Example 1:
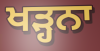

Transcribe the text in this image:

ਖੜ੍ਹਨਾ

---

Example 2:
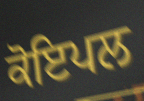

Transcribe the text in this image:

ਕੋਇਪਲ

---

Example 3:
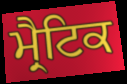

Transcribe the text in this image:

ਮ੍ਰੈਟਿਕ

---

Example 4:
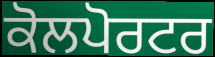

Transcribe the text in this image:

ਕੋਲਪੋਰਟਰ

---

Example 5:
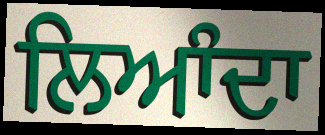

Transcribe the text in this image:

ਲਿਆੰਦਾ